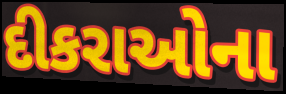
દીકરાઓના